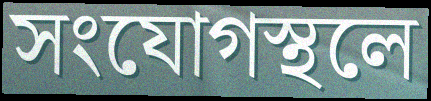
সংযোগস্থলে